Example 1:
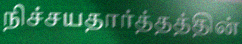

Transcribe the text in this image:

நிச்சயதார்த்தத்தின்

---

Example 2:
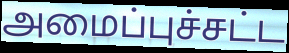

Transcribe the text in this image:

அமைப்புச்சட்ட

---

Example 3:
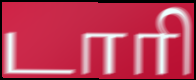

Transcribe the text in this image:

டாரி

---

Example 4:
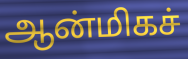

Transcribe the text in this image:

ஆன்மிகச்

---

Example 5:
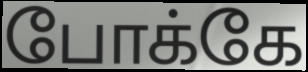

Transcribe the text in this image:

போக்கே